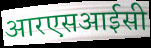
आरएसआईसी